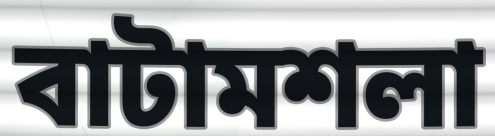
বাটামশলা